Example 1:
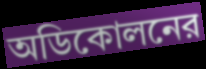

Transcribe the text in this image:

অডিকোলনের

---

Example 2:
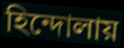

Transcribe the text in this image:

হিন্দোলায়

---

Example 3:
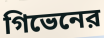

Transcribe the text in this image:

গিভেনের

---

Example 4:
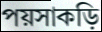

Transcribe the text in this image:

পয়সাকড়ি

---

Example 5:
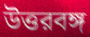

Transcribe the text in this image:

উত্তরবঙ্গ